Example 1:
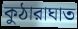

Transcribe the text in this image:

কুঠারাঘাত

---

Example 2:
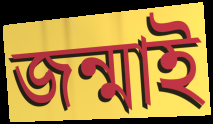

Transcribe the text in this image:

জন্মাই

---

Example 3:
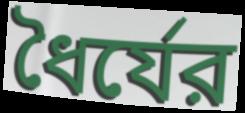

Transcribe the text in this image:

ধৈর্যের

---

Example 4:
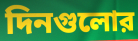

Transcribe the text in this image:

দিনগুলোর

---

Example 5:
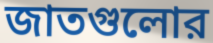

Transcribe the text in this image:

জাতগুলোর